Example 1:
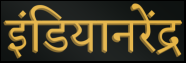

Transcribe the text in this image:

इंडियानरेंद्र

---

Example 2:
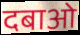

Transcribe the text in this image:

दबाओ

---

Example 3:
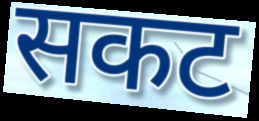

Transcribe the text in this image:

सकट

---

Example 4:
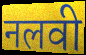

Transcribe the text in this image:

नलवी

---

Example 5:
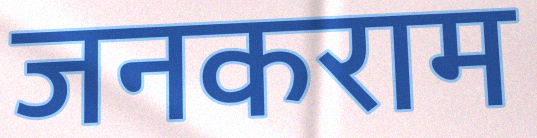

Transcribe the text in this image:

जनकराम